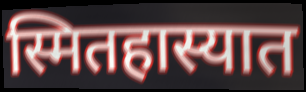
स्मितहास्यात